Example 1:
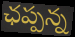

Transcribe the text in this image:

ఛప్పన్న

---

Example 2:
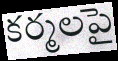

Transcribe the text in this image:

కర్మలపై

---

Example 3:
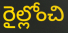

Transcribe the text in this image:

రైల్లోంచి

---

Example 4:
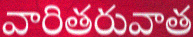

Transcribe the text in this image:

వారితరువాత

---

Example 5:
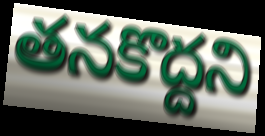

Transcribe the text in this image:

తనకొద్దని